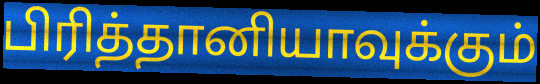
பிரித்தானியாவுக்கும்